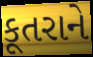
કૂતરાને